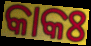
କାକଃ